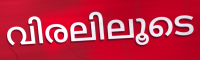
വിരലിലൂടെ